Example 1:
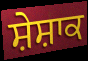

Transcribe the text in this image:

ਸ਼ੇਸ਼ਾਕ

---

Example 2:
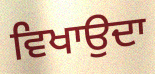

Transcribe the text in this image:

ਵਿਖਾਉਦਾ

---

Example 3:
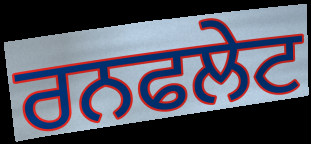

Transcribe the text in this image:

ਰਨਫਲੇਟ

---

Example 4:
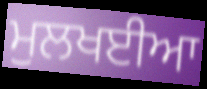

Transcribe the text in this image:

ਮੁਲਖਈਆ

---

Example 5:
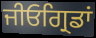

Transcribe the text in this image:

ਜੀਓਗ੍ਰਿਡਾਂ